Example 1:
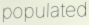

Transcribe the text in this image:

populated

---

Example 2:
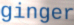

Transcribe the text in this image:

ginger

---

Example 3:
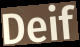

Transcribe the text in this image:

Deif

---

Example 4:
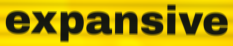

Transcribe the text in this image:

expansive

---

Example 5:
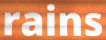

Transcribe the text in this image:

rains